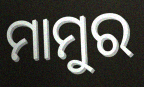
ମାମୁର